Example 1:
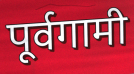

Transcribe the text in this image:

पूर्वगामी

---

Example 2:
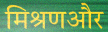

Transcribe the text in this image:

मिश्रणऔर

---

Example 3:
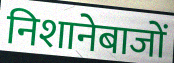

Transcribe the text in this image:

निशानेबाजों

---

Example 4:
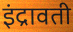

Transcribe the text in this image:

इंद्रावती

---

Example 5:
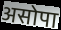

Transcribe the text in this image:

असोपा